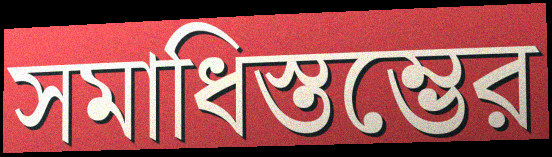
সমাধিস্তম্ভের